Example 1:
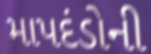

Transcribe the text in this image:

માપદંડોની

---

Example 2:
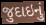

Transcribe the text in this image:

જુદાઇનું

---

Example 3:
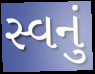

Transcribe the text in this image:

સ્વનું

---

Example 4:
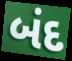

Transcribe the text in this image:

બંદ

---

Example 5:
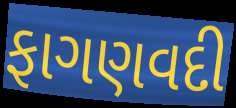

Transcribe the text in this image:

ફાગણવદી